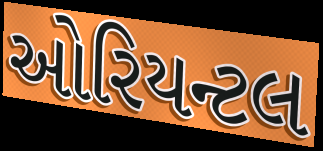
ઓરિયન્ટલ